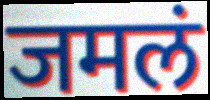
जमलं